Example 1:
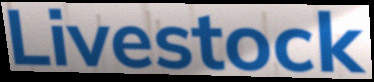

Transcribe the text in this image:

Livestock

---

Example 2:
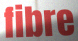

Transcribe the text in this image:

fibre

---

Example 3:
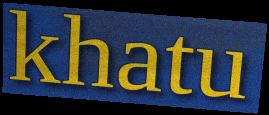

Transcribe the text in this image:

khatu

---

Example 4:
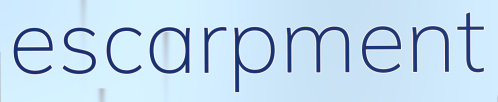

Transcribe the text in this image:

escarpment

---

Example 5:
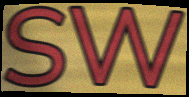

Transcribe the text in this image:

SW